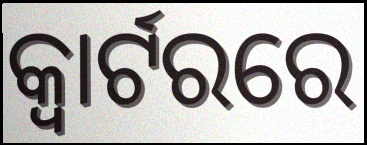
କ୍ୱାର୍ଟରରେ